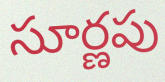
సూర్ణపు